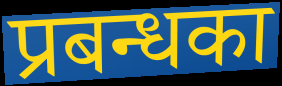
प्रबन्धका